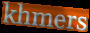
khmers